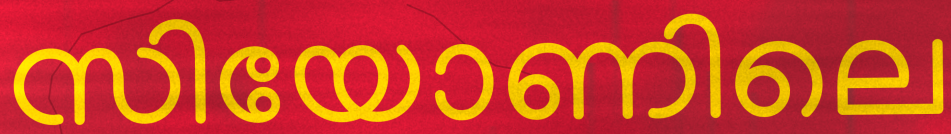
സിയോണിലെ